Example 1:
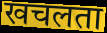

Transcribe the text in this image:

खचलता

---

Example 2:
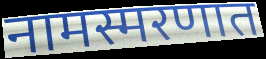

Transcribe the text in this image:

नामस्मरणात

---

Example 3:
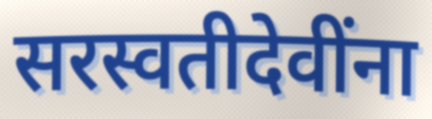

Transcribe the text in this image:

सरस्वतीदेवींना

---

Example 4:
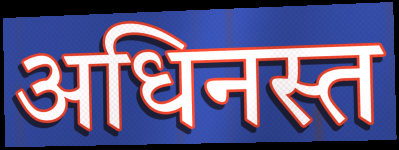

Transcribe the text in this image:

अधिनस्त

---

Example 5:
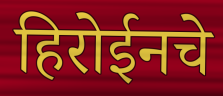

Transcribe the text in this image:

हिरोईनचे